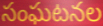
సంఘటనల